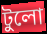
টুলো